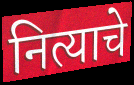
नित्याचे